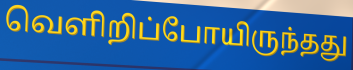
வெளிறிப்போயிருந்தது